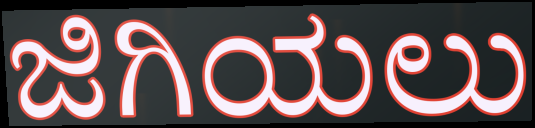
ಜಿಗಿಯಲು